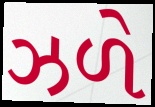
ઝળે